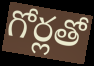
గోర్లతో